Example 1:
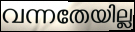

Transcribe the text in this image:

വന്നതേയില്ല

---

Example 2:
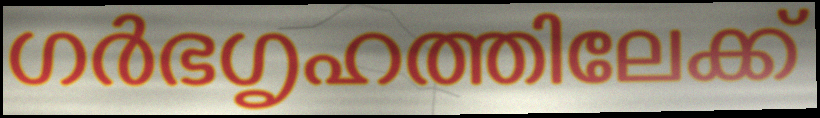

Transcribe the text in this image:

ഗർഭഗൃഹത്തിലേക്ക്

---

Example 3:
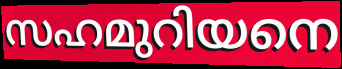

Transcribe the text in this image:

സഹമുറിയനെ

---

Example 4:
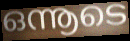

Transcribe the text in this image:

ഒന്നൂടെ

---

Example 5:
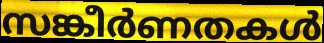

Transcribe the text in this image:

സങ്കീർണതകൾ